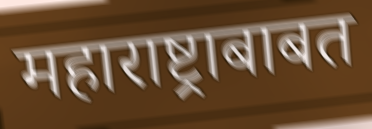
महाराष्ट्राबाबत